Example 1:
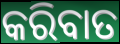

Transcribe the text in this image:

କରିବାତ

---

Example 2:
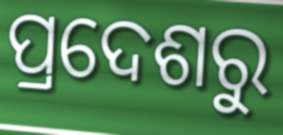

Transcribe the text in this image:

ପ୍ରଦେଶରୁ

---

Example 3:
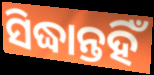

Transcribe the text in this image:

ସିଦ୍ଧାନ୍ତହିଁ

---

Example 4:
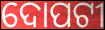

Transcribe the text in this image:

ଦୋପଟୀ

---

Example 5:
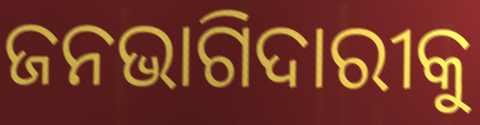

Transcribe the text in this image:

ଜନଭାଗିଦାରୀକୁ